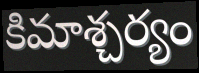
కిమాశ్చర్యం